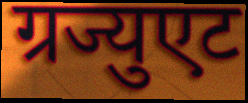
ग्रज्युएट